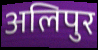
अलिपुर